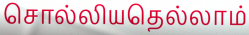
சொல்லியதெல்லாம்